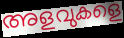
അളവുകളെ